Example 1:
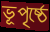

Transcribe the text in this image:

ভূপৃষ্ঠে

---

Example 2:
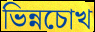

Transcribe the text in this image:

ভিন্নচোখ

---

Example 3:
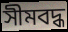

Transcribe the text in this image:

সীমবদ্ধ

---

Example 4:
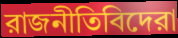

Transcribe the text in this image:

রাজনীতিবিদেরা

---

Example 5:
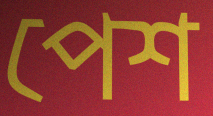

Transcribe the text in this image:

পেশ